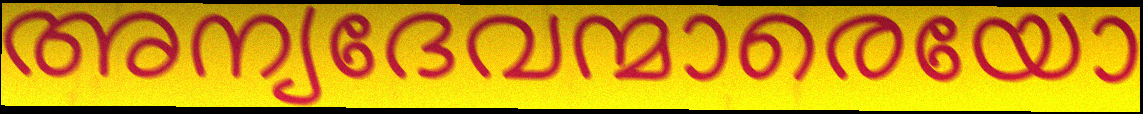
അന്യദേവന്മാരെയോ